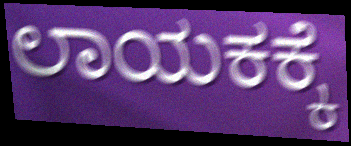
ಲಾಯಕಕ್ಕೆ